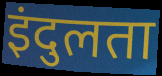
इंदुलता